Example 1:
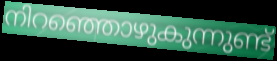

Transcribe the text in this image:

നിറഞ്ഞൊഴുകുന്നുണ്ട്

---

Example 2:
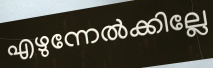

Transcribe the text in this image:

എഴുന്നേൽക്കില്ലേ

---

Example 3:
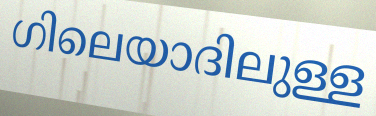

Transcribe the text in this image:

ഗിലെയാദിലുള്ള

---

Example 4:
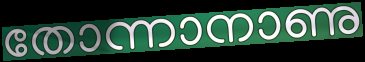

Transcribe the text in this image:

തോന്നാനാണു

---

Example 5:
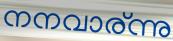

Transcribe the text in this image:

നനവാര്ന്നു